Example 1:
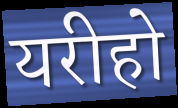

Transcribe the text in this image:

यरीहो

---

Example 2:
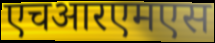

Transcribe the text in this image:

एचआरएमएस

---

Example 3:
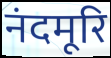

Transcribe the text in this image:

नंदमूरि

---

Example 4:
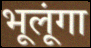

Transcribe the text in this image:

भूलूंगा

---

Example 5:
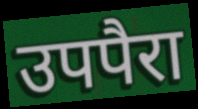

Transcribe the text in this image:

उपपैरा